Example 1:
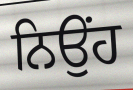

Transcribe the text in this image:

ਨਿਉਂਹ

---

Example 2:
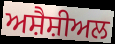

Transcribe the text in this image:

ਅਸ਼ੈਸ਼ੀਅਲ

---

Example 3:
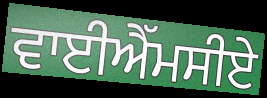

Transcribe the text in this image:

ਵਾਈਐੱਮਸੀਏ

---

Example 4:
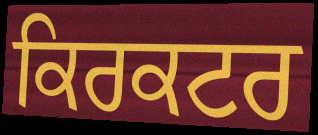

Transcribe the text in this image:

ਕਿਰਕਟਰ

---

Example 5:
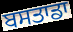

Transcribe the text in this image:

ਬਸਤਾਡਾ